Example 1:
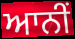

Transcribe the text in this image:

ਆਨੀਂ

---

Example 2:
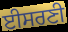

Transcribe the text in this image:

ਈਸਰਣੀ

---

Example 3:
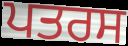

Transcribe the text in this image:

ਪਤਰਸ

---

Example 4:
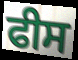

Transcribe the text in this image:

ਫੀਸ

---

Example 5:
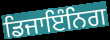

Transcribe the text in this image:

ਡਿਜਾਇੰਨਿਗ